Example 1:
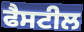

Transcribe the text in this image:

ਫੈਸਟੀਲ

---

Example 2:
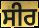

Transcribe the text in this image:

ਸੀਰ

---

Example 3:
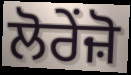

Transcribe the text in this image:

ਲੋਰੇਂਜ਼ੋ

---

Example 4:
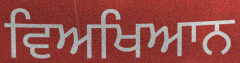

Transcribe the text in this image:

ਵਿਅਖਿਆਨ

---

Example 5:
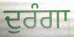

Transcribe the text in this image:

ਦੁਰੰਗਾ